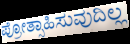
ಪ್ರೋತ್ಸಾಹಿಸುವುದಿಲ್ಲ